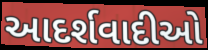
આદર્શવાદીઓ